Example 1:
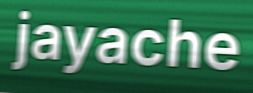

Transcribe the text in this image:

jayache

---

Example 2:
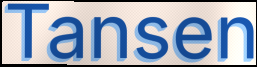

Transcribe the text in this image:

Tansen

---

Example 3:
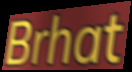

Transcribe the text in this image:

Brhat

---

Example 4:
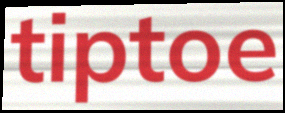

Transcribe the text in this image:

tiptoe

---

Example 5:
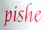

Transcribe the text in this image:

pishe